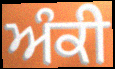
ਅੰਕੀ